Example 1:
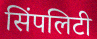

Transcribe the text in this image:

सिंपलिटी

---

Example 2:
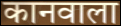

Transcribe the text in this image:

कानवाला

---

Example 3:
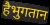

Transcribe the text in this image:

हैभुगतान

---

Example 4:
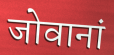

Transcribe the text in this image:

जोवानां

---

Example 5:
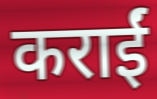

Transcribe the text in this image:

कराईं